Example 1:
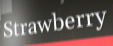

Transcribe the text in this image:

Strawberry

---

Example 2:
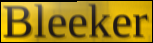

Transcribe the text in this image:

Bleeker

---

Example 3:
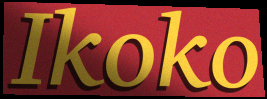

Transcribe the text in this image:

Ikoko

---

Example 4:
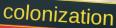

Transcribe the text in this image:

colonization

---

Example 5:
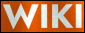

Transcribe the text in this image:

WIKI